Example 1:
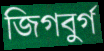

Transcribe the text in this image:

জিগবুর্গ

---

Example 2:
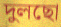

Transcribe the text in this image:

দুলছো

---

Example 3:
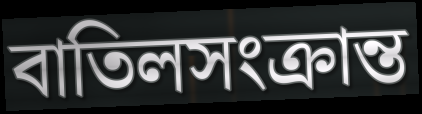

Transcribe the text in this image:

বাতিলসংক্রান্ত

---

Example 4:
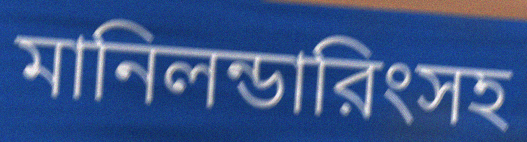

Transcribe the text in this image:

মানিলন্ডারিংসহ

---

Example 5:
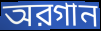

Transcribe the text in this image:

অরগান